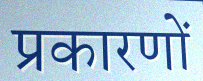
प्रकारणों